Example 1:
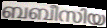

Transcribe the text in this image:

ബബീസിയ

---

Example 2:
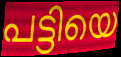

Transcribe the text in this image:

പട്ടിയെ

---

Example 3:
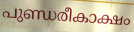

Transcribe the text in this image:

പുണ്ഡരീകാക്ഷം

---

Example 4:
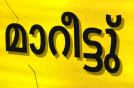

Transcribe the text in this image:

മാറീട്ടു്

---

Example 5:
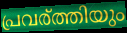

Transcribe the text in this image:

പ്രവര്ത്തിയും